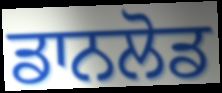
ਡਾਨਲੋਡ